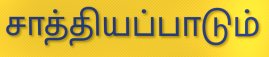
சாத்தியப்பாடும்